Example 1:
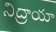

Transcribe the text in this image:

నిద్రాయా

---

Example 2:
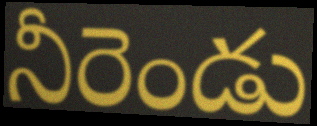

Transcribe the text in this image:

నీరెండు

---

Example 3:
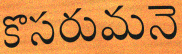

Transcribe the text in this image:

కొసరుమనె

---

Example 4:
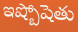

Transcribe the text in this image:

ఇష్బోషెతు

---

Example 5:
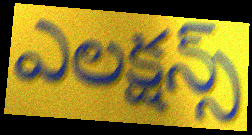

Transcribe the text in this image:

ఎలక్షన్స్